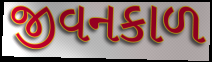
જીવનકાળ